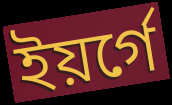
ইয়র্গে